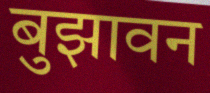
बुझावन